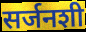
सर्जनशी